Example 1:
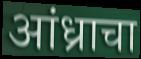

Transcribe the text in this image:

आंध्राचा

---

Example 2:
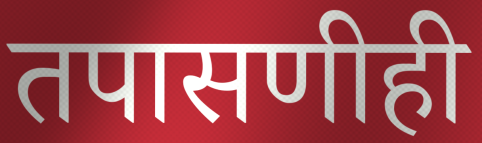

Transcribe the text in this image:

तपासणीही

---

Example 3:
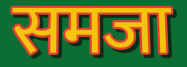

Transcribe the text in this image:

समजा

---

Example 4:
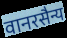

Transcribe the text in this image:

वानरसैन्य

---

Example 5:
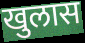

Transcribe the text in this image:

खुलास